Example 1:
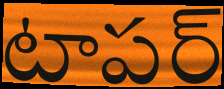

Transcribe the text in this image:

టాపర్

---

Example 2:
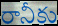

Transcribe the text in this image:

రానీకు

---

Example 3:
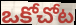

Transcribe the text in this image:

ఒకోచోట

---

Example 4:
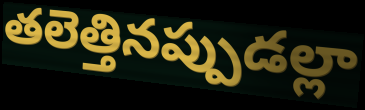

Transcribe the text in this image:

తలెత్తినప్పుడల్లా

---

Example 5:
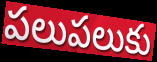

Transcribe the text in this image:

పలుపలుకు